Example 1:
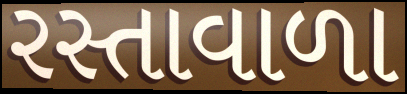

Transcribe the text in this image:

રસ્તાવાળા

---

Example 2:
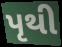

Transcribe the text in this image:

પૃથી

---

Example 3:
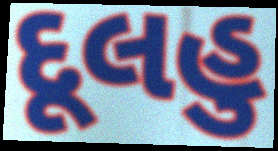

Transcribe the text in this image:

દૂલહુ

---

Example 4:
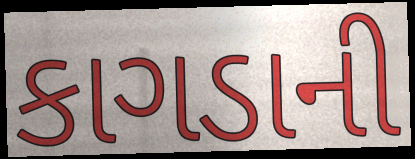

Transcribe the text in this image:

કાગડાની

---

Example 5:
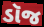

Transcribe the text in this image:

ડૉજ